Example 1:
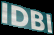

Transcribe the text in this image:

IDBI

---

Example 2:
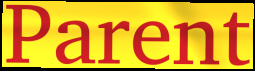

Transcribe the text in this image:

Parent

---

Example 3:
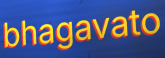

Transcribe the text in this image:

bhagavato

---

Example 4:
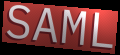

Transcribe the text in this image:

SAML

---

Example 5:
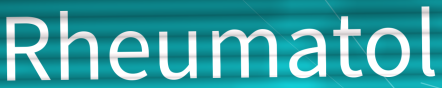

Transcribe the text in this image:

Rheumatol